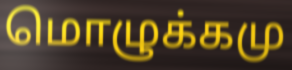
மொழுக்கமு